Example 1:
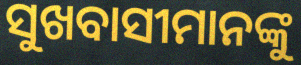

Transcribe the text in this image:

ସୁଖବାସୀମାନଙ୍କୁ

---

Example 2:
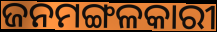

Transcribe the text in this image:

ଜନମଙ୍ଗଳକାରୀ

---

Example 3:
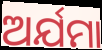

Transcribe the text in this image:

ଅର୍ଯମା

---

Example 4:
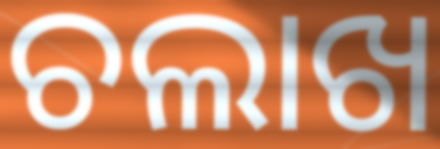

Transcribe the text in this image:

ଚଲାଖ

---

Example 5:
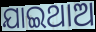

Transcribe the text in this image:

ଯାଇଥାଅ